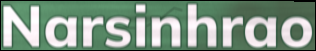
Narsinhrao